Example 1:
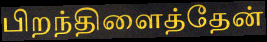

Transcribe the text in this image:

பிறந்திளைத்தேன்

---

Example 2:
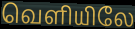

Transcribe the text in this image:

வெளியிலே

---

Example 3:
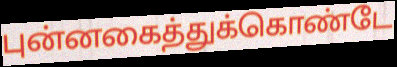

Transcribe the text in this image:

புன்னகைத்துக்கொண்டே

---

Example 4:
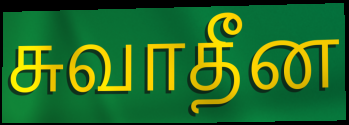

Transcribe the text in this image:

சுவாதீன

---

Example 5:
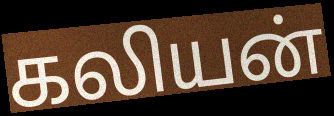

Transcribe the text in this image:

கலியன்